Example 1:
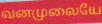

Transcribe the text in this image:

வனமுலையே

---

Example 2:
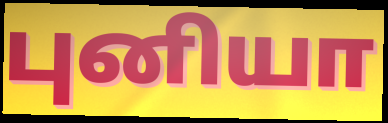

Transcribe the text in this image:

புனியா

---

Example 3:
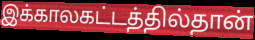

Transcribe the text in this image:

இக்காலகட்டத்தில்தான்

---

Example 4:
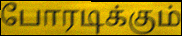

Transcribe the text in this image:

போரடிக்கும்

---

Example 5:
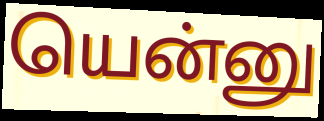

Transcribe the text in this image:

யென்னு